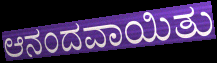
ಆನಂದವಾಯಿತು